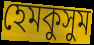
হেমকুসুম